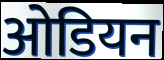
ओडियन